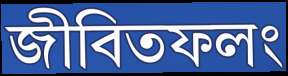
জীবিতফলং